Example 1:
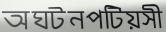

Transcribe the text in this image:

অঘটনপটিয়সী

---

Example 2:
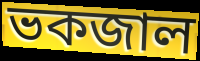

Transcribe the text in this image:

ভকজাল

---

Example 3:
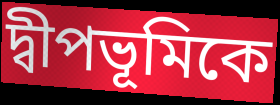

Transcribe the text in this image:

দ্বীপভূমিকে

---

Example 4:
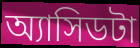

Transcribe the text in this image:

অ্যাসিডটা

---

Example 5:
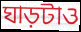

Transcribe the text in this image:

ঘাড়টাও